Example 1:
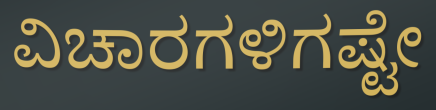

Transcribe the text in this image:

ವಿಚಾರಗಳಿಗಷ್ಟೇ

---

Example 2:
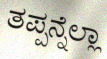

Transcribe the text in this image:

ತಪ್ಪನ್ನೆಲ್ಲಾ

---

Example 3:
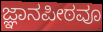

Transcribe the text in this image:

ಜ್ಞಾನಪೀಠವೂ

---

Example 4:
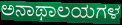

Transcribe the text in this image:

ಅನಾಥಾಲಯಗಳ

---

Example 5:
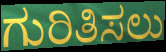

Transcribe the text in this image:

ಗುರಿತಿಸಲು